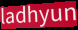
ladhyun